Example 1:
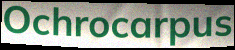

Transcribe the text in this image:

Ochrocarpus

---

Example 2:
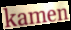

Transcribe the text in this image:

kamen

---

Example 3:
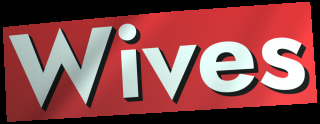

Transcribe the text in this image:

Wives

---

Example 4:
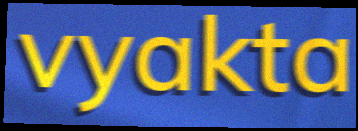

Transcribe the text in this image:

vyakta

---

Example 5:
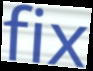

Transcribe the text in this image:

fix